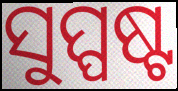
ସୁପ୍ପଷ୍ଟ